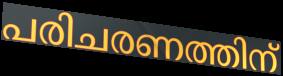
പരിചരണത്തിന്